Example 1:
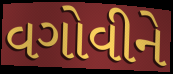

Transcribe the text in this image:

વગોવીને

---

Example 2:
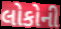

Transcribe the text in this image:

લોકોની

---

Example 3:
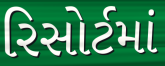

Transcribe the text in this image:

રિસોર્ટમાં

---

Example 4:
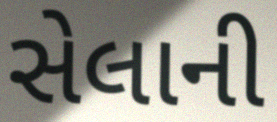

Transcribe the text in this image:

સેલાની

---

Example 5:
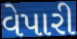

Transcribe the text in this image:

વેપારી